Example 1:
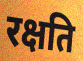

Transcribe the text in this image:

रक्षति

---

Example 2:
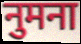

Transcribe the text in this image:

नुमना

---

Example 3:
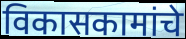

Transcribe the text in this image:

विकासकामांचे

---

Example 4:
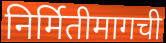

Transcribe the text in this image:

निर्मितीमागची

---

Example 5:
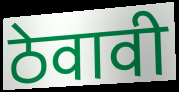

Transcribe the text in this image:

ठेवावी